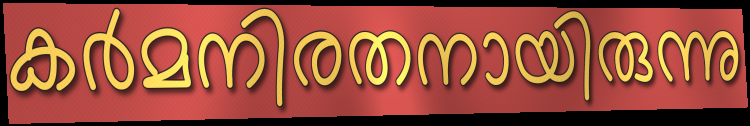
കർമനിരതനായിരുന്നു